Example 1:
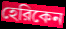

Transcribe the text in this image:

হেরিকেন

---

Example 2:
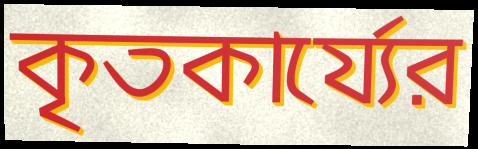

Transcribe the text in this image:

কৃতকার্য্যের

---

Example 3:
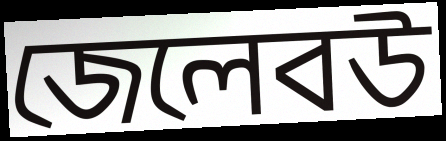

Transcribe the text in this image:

জেলেবউ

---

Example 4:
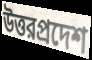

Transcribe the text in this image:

উত্তরপ্রদেশ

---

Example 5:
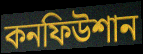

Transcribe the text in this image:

কনফিউশান